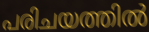
പരിചയത്തിൽ